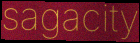
sagacity